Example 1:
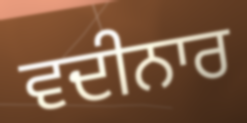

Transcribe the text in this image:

ਵਦੀਨਾਰ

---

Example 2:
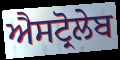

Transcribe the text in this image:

ਐਸਟ੍ਰੋਲੇਬ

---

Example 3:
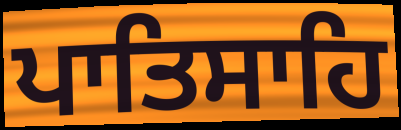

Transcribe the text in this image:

ਪਾਤਿਸਾਹਿ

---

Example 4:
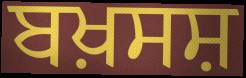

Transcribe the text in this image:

ਬਖ਼ਸਸ਼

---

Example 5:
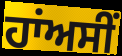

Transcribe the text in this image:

ਹਾਂਅਸੀਂ